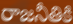
రాజనీతికి